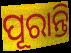
ପୂରାନ୍ତି